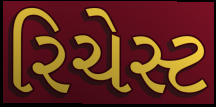
રિચેસ્ટ